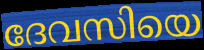
ദേവസിയെ